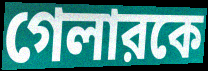
গেলারকে